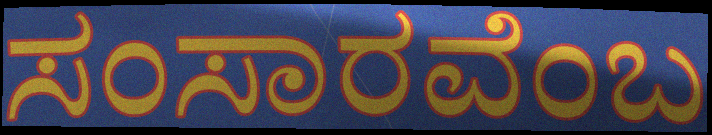
ಸಂಸಾರವೆಂಬ